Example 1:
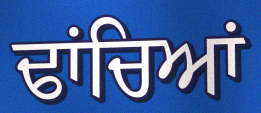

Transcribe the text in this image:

ਢਾਂਚਿਆਂ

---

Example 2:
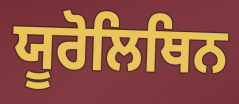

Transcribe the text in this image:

ਯੂਰੋਲਿਥਿਨ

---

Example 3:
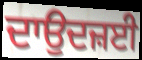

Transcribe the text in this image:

ਦਾਉਦਜ਼ਈ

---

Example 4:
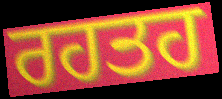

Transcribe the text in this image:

ਰਹਤਹ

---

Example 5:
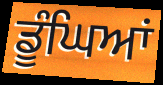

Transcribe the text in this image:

ਡੂੰਘਿਆਂ